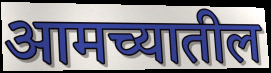
आमच्यातील